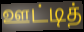
ஊட்டித்